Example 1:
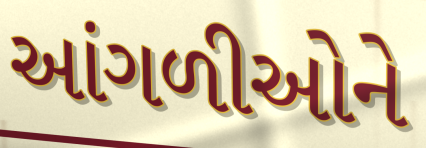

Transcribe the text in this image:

આંગળીઓને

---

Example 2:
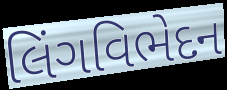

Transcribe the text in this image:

લિંગવિભેદન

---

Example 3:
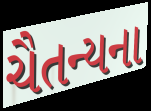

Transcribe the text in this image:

ચૈતન્યના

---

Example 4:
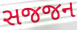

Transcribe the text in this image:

સજજન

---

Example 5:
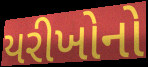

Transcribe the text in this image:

યરીખોનો